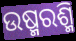
ଉଷ୍ମରଶ୍ମି